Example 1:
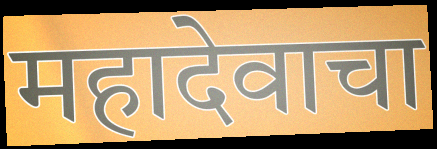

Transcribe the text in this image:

महादेवाचा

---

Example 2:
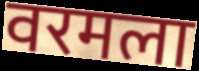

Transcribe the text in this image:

वरमला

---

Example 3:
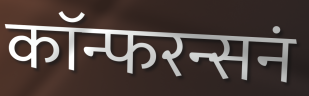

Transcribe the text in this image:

कॉन्फरन्सनं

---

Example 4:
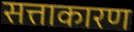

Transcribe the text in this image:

सत्ताकारण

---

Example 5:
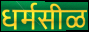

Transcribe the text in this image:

धर्मसीळ